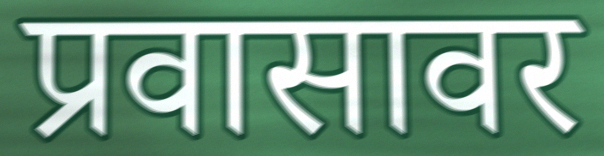
प्रवासावर